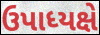
ઉપાધ્યક્ષે